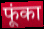
फूंका